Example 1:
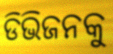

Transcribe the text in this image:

ଡିଭିଜନକୁ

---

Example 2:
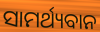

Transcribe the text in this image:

ସାମର୍ଥ୍ୟବାନ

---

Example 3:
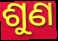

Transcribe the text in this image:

ଶୁଣ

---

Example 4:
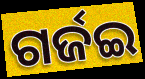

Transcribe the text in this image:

ଗର୍ଜଇ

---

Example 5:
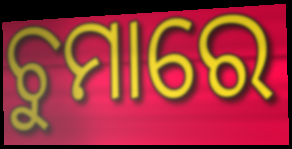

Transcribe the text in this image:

ଚୁମାରେ